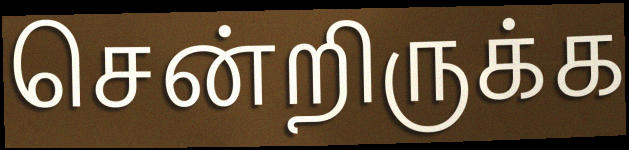
சென்றிருக்க